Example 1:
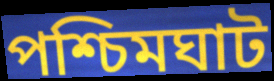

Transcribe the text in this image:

পশ্চিমঘাট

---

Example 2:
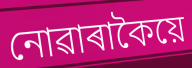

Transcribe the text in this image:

নোৱাৰাকৈয়ে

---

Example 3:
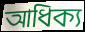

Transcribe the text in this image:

আধিক্য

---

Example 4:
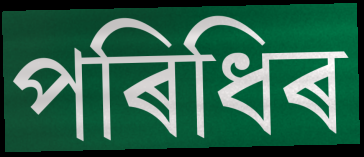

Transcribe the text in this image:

পৰিধিৰ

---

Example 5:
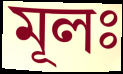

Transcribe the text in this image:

মূলঃ